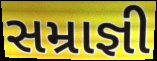
સમ્રાજ્ઞી